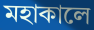
মহাকালে